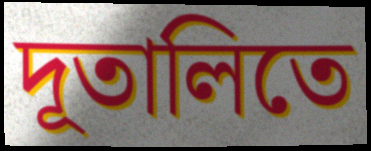
দূতালিতে